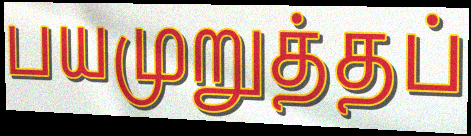
பயமுறுத்தப்